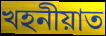
খহনীয়াত